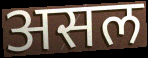
असल